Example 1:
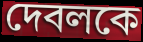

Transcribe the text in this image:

দেবলকে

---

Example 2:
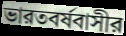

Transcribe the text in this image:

ভারতবর্ষবাসীর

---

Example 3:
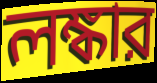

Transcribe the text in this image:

লঙ্কার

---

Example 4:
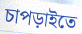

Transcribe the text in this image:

চাপড়াইতে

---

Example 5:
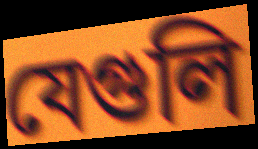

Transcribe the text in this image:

যেগুলি